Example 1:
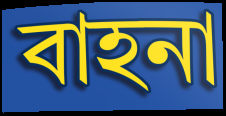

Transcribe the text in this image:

বাহনা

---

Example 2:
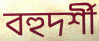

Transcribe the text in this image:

বহুদর্শী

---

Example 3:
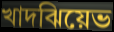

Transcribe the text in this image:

খাদঝিয়েভ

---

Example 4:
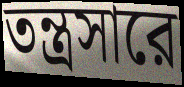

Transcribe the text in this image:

তন্ত্রসারে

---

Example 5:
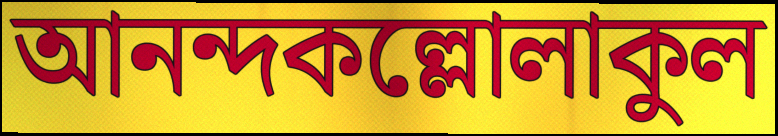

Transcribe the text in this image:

আনন্দকল্লোলাকুল